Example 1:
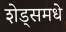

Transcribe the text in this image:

शेड्समधे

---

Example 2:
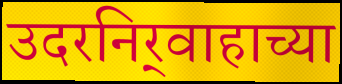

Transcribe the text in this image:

उदरनिर्वाहाच्या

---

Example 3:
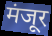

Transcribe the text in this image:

मंजूर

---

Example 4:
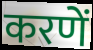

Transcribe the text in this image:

करणें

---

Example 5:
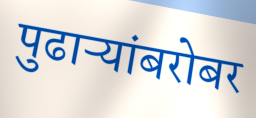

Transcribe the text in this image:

पुढाऱ्यांबरोबर